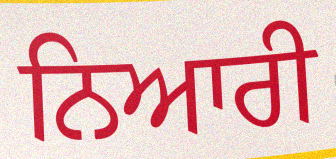
ਨਿਆਰੀ